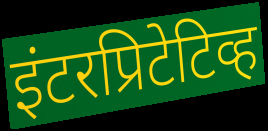
इंटरप्रिटेटिव्ह